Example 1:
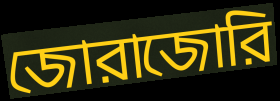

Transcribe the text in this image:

জোরাজোরি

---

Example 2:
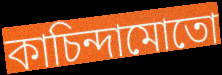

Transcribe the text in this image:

কাচিন্দামোতো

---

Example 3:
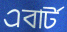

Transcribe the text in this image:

এবার্ট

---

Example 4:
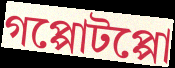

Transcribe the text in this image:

গপ্পোটপ্পো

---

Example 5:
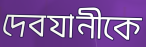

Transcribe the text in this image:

দেবযানীকে